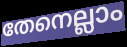
തേനെല്ലാം